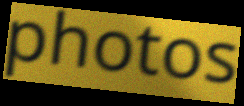
photos